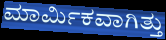
ಮಾರ್ಮಿಕವಾಗಿತ್ತು